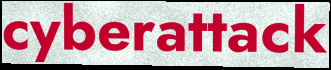
cyberattack